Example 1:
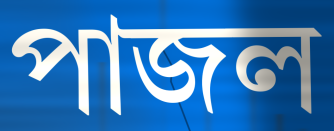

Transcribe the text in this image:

পাজল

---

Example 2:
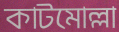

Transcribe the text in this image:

কাটমোল্লা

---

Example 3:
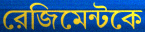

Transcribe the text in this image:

রেজিমেন্টকে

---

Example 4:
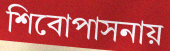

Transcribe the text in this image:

শিবোপাসনায়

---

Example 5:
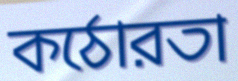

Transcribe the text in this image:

কঠোরতা